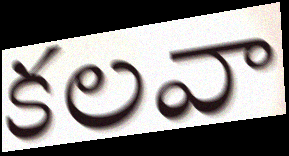
కలవా